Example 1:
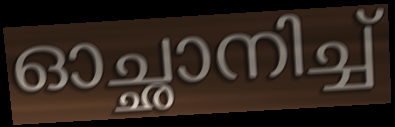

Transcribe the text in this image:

ഓച്ഛാനിച്ച്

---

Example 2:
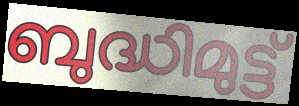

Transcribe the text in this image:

ബുദ്ധിമുട്ട്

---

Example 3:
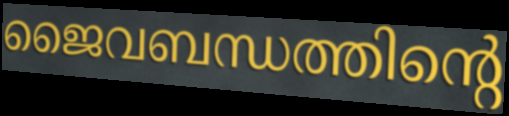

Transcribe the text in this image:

ജൈവബന്ധത്തിന്റെ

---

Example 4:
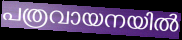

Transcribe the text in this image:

പത്രവായനയിൽ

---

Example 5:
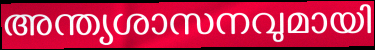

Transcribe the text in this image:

അന്ത്യശാസനവുമായി